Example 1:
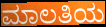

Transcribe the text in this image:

ಮಾಲತಿಯ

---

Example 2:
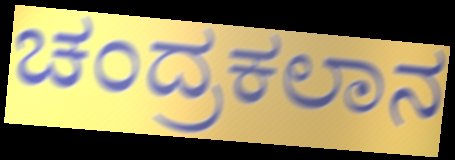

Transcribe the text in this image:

ಚಂದ್ರಕಲಾನ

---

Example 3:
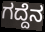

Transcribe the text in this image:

ಗದ್ದೆನ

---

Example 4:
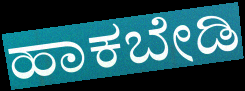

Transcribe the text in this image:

ಹಾಕಬೇಡಿ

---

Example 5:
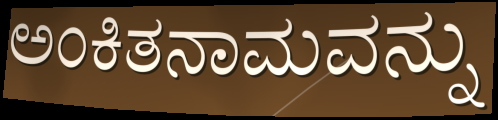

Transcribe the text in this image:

ಅಂಕಿತನಾಮವನ್ನು